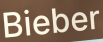
Bieber